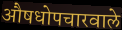
औषधोपचारवाले